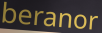
beranor